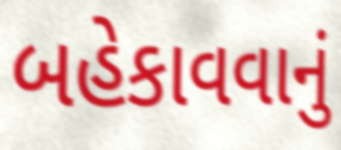
બહેકાવવાનું